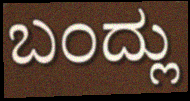
ಬಂದ್ಲು